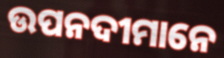
ଉପନଦୀମାନେ